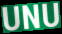
UNU